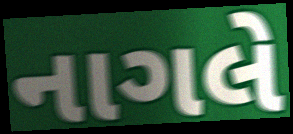
નાગલે